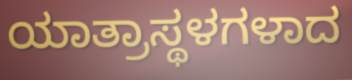
ಯಾತ್ರಾಸ್ಥಳಗಳಾದ